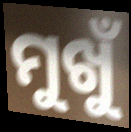
ମୁଖୁଁ